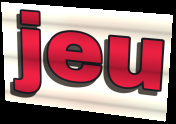
jeu